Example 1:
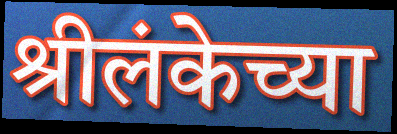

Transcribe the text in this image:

श्रीलंकेच्या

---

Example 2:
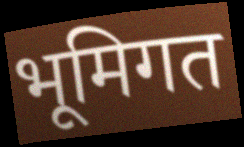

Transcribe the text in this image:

भूमिगत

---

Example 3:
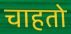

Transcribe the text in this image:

चाहतो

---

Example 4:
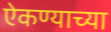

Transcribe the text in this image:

ऐकण्याच्या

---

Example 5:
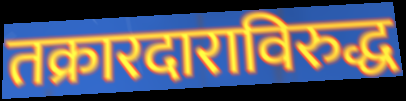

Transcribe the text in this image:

तक्रारदाराविरुद्ध